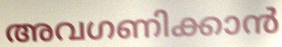
അവഗണിക്കാൻ